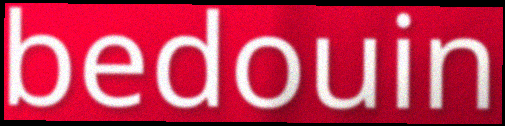
bedouin